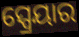
ସ୍ପ୍ରେୟାର